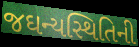
જઘન્યસ્થિતિની